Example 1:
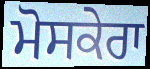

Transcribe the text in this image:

ਮੋਸਕੇਰਾ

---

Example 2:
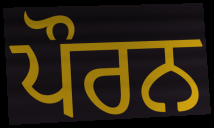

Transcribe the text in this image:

ਪੌਰਨ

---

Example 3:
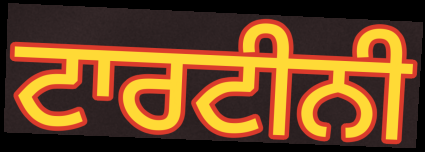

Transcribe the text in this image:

ਟਾਰਟੀਨੀ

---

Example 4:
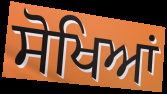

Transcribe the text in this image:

ਸੋਖਿਆਂ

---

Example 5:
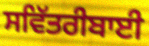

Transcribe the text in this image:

ਸਵਿੱਤਰੀਬਾਈ